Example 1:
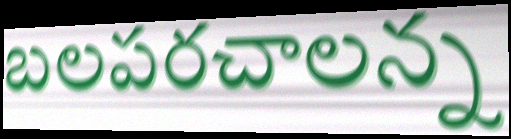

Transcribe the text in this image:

బలపరచాలన్న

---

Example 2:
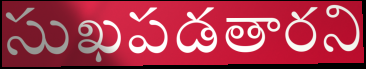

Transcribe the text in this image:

సుఖపడతారని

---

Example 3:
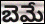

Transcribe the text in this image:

బెమే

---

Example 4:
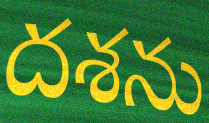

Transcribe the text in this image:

దశను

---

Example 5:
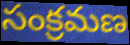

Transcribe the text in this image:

సంక్రమణ